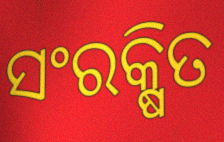
ସଂରକ୍ଷିତ